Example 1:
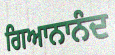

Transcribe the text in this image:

ਗਿਆਨਾਨੰਦ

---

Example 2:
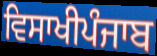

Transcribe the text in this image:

ਵਿਸਾਖੀਪੰਜਾਬ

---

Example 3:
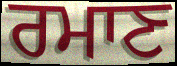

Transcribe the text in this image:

ਰਮਾਣ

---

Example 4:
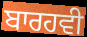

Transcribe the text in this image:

ਬਾਰਹਵੀ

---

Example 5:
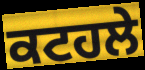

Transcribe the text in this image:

ਕਟਹਲੇ